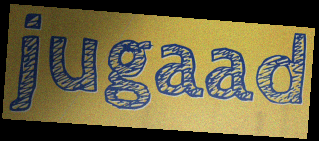
jugaad